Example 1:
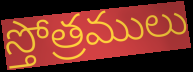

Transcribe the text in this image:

స్తోత్రములు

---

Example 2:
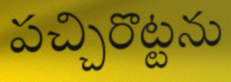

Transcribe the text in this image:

పచ్చిరొట్టను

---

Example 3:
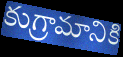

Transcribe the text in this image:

కుగ్రామానికి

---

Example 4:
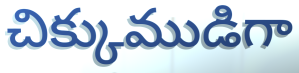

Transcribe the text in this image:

చిక్కుముడిగా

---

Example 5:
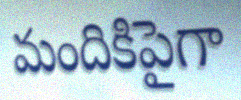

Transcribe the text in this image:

మందికిపైగా